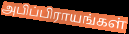
அபிப்பிராயங்கள்